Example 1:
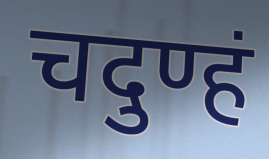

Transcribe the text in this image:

चदुण्हं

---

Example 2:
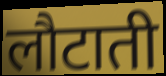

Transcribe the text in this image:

लौटाती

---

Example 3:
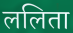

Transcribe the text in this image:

ललिता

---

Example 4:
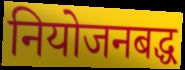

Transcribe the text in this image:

नियोजनबद्ध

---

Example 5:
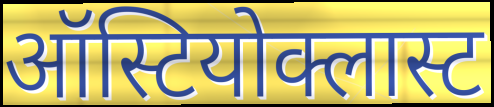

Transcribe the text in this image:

ऑस्टियोक्लास्ट